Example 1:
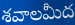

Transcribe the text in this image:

శవాలమీద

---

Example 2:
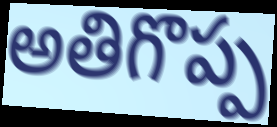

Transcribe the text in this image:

అతిగొప్ప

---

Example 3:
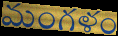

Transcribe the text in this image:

మంగళం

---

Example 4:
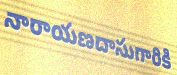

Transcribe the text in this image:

నారాయణదాసుగారికి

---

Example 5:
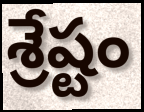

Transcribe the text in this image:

శ్రేష్టం